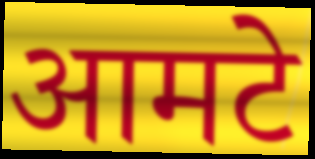
आमटे